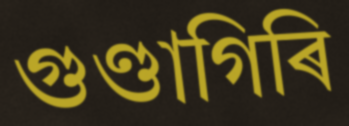
গুণ্ডাগিৰি